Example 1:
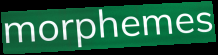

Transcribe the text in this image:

morphemes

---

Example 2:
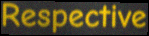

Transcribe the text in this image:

Respective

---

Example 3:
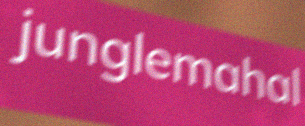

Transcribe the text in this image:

junglemahal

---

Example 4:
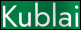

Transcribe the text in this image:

Kublai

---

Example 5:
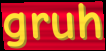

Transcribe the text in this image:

gruh